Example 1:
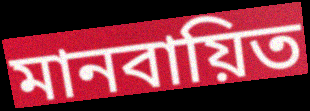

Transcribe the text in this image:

মানবায়িত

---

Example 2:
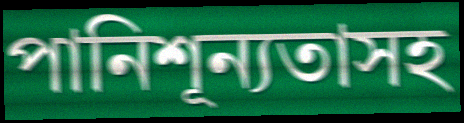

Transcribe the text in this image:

পানিশূন্যতাসহ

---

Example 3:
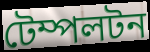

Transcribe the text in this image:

টেম্পলটন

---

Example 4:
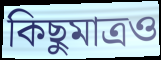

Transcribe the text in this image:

কিছুমাত্রও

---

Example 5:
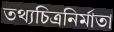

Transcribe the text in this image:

তথ্যচিত্রনির্মাতা